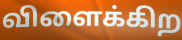
விளைக்கிற